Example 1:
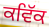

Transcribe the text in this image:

ਕਵਿੱਕ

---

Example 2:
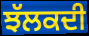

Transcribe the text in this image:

ਝੱਲਕਦੀ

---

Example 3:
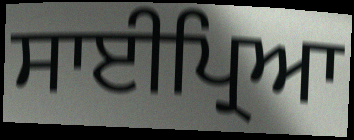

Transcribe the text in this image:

ਸਾਈਪ੍ਰਿਆ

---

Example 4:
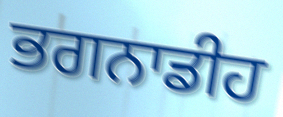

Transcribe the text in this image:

ਭਗਨਾਡੀਹ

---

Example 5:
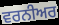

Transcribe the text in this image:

ਵਰਨੀਅਰ